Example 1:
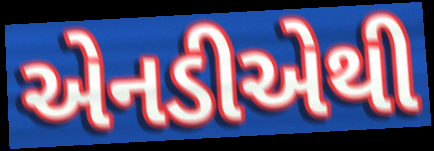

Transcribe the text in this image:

એનડીએથી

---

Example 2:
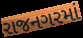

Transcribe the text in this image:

રાજનગરમાં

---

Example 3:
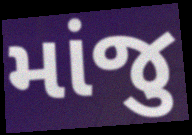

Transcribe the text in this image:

માંજુ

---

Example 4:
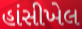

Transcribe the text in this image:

હાંસીખેલ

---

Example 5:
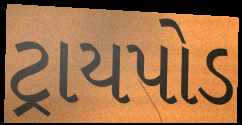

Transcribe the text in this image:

ટ્રાયપોડ